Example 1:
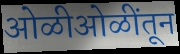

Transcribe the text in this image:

ओळीओळींतून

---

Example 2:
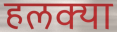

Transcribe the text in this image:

हलक्या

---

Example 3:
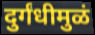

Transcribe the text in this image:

दुर्गंधीमुळं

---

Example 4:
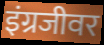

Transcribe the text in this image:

इंग्रजीवर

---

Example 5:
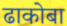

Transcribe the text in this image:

ढाकोबा